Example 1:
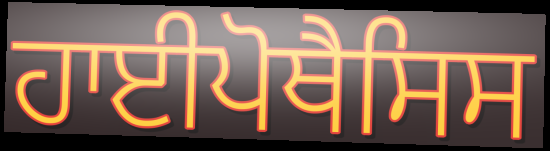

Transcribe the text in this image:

ਹਾਈਪੋਥੈਸਿਸ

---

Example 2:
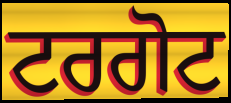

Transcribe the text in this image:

ਟਰਗੋਟ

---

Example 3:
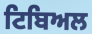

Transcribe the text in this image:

ਟਿਬਿਅਲ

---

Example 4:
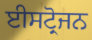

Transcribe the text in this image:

ਈਸਟ੍ਰੋਜਨ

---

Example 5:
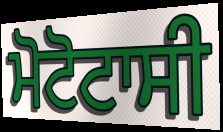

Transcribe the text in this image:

ਮੋਟੋਟਾਸੀ